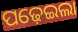
ପଢ଼େଇଲା